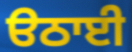
ੳਠਾਈ